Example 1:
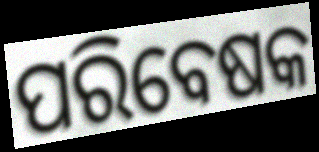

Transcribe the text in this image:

ପରିବେଷକ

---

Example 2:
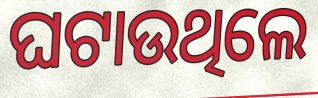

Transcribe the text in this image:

ଘଟାଉଥିଲେ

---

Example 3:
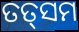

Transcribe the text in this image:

ତତ୍‍ସମ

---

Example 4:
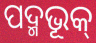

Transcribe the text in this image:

ପଦ୍ମଭୂକ୍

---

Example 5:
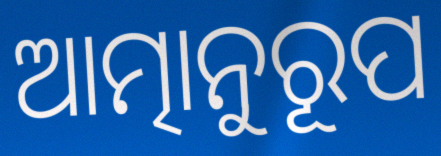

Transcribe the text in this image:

ଆତ୍ମାନୁରୂପ